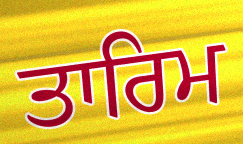
ਤਾਰਿਮ